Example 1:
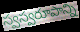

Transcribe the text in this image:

స్వస్వరూపాన్ని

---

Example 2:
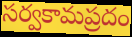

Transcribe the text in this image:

సర్వకామప్రదం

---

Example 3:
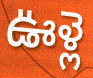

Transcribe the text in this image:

ఊళ్లె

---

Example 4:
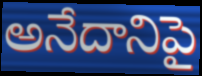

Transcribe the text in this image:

అనేదానిపై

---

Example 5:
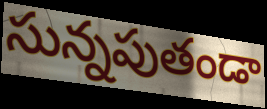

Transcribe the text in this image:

సున్నపుతండా